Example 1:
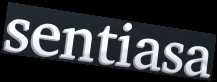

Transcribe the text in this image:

sentiasa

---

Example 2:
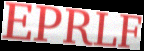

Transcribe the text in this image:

EPRLF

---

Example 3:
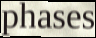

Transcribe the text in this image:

phases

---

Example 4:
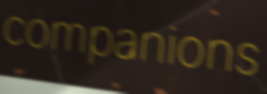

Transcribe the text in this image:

companions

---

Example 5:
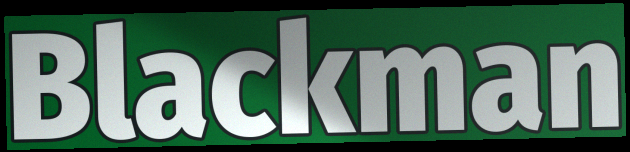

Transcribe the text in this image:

Blackman